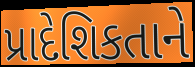
પ્રાદેશિકતાને